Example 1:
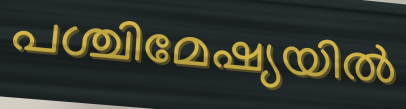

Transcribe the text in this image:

പശ്ചിമേഷ്യയിൽ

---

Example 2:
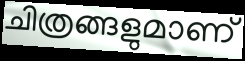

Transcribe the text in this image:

ചിത്രങ്ങളുമാണ്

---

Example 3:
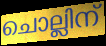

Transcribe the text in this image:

ചൊല്ലിന്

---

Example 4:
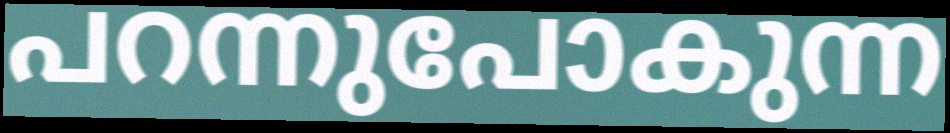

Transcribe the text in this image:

പറന്നുപോകുന്ന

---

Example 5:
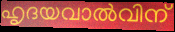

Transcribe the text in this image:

ഹൃദയവാൽവിന്